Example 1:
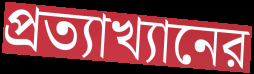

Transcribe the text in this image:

প্রত্যাখ্যানের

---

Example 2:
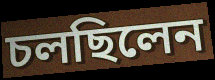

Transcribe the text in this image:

চলছিলেন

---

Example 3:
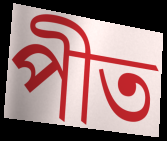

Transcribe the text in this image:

পীত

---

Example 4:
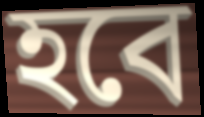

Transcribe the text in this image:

হবে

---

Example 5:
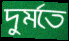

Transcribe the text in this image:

দুর্মতে